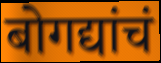
बोगद्यांचं